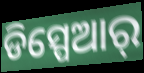
ଡିସ୍ପେଆର୍